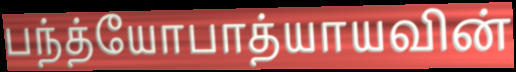
பந்த்யோபாத்யாயவின்